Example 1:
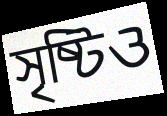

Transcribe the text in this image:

সৃষ্টিও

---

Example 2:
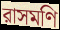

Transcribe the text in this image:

রাসমণি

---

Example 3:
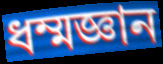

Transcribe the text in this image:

ধম্মজ্ঞান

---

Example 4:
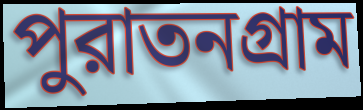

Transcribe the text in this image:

পুরাতনগ্রাম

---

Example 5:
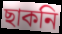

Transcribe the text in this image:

ছাকনি